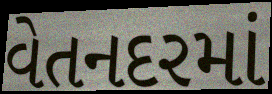
વેતનદરમાં